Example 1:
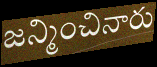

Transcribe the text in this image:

జన్మించినారు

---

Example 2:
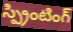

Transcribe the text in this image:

స్ప్రింటింగ్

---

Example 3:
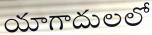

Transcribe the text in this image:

యాగాదులలో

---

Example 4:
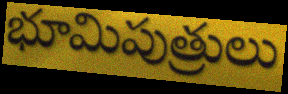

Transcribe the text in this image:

భూమిపుత్రులు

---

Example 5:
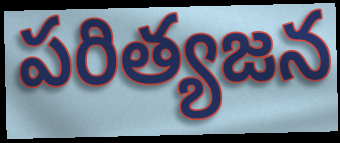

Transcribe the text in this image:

పరిత్యజన